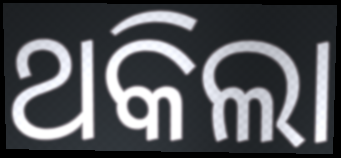
ଥକିଲା